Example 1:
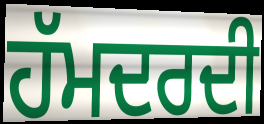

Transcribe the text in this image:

ਹੱਮਦਰਦੀ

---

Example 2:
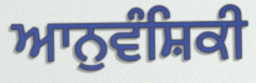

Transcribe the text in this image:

ਆਨੁਵੰਸ਼ਿਕੀ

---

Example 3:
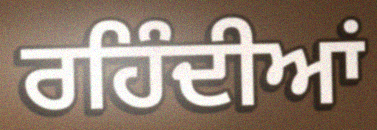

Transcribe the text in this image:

ਰਹਿੰਦੀਆਂ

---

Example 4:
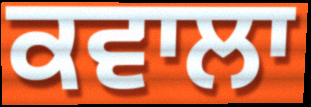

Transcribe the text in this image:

ਕਵਾਲਾ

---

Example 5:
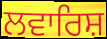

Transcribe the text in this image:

ਲਵਾਰਿਸ਼